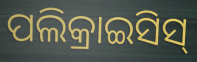
ପଲିକ୍ରାଇସିସ୍